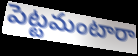
పెట్టమంటారా